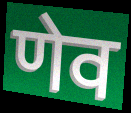
णेव